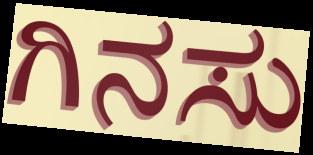
ಗಿನಸು